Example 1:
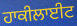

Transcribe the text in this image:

ਹਾਕੀਲਾਈਟ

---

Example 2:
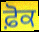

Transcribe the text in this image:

ਫ਼ੋਕ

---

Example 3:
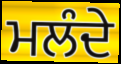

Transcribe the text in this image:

ਮਲੰਦੇ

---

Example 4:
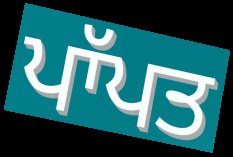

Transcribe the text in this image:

ਪਾੱਪਤ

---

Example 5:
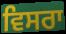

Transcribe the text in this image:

ਵਿਸਰਾ